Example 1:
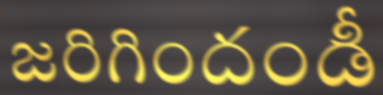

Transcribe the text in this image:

జరిగిందండీ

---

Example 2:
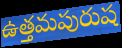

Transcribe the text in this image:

ఉత్తమపురుష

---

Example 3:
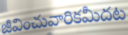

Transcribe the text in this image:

జీవించువారికమీదట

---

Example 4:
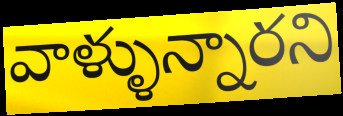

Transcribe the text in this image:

వాళ్ళున్నారని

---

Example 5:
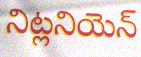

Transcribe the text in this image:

నిట్లనియెన్